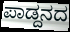
ಪಾಡ್ದನದ